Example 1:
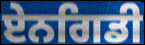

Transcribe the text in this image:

ਏਨਗਿਡੀ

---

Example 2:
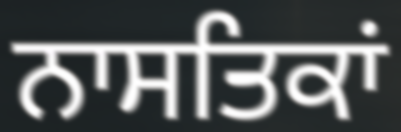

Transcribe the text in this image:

ਨਾਸਤਿਕਾਂ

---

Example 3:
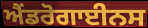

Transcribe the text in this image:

ਐਂਡਰੋਗਾਈਨਸ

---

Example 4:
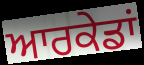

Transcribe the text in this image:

ਆਰਕੇਡਾਂ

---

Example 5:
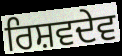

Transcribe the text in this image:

ਰਿਸ਼ਵਦੇਵ